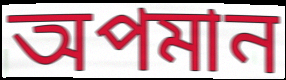
অপমান